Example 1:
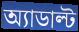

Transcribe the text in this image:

অ্যাডাল্ট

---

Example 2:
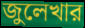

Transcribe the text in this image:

জুলেখার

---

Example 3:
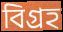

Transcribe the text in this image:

বিগ্রহ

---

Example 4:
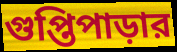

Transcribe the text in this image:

গুপ্তিপাড়ার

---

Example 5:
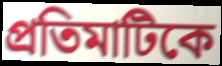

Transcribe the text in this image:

প্রতিমাটিকে